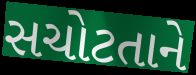
સચોટતાને